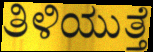
ತಿಳಿಯುತ್ತೆ